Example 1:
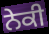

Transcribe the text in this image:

ਨੇਕੀ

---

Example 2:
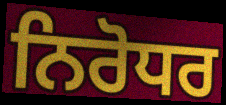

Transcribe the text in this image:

ਨਿਰੋਧਰ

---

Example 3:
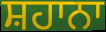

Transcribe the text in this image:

ਸ਼ਹਾਨਾ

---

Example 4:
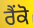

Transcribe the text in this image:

ਰੈਂਕੋ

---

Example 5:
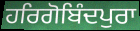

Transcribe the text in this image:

ਹਰਿਗੋਬਿੰਦਪੁਰਾ